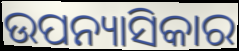
ଉପନ୍ୟାସିକାର